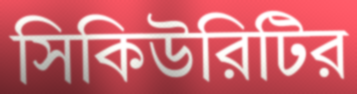
সিকিউরিটির